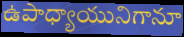
ఉపాధ్యాయునిగానూ